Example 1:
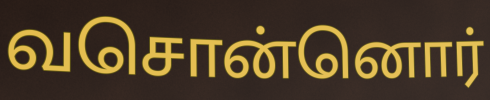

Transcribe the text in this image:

வசொன்னொர்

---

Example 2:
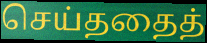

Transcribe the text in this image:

செய்ததைத்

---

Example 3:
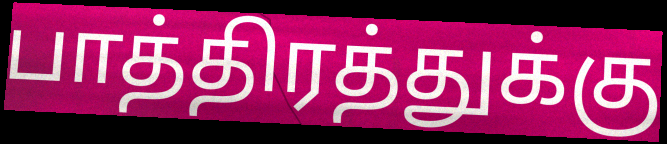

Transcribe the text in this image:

பாத்திரத்துக்கு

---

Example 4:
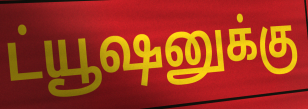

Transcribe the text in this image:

ட்யூஷனுக்கு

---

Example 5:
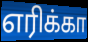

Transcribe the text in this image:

எரிக்கா